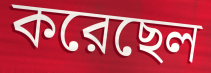
করেছেল